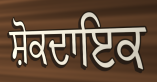
ਸ਼ੋਕਦਾਇਕ